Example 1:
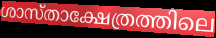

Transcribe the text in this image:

ശാസ്താക്ഷേത്രത്തിലെ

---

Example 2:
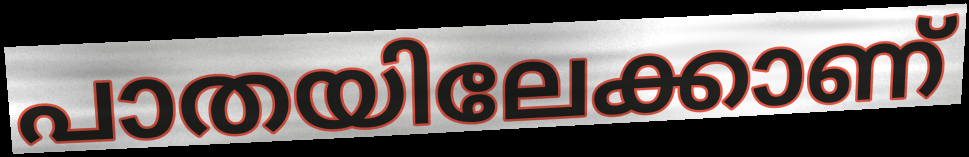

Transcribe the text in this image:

പാതയിലേക്കാണ്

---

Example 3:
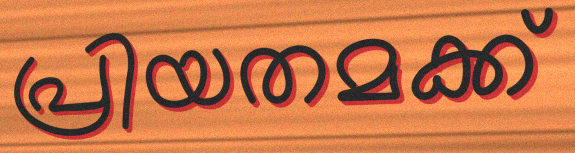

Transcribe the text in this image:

പ്രിയതമക്ക്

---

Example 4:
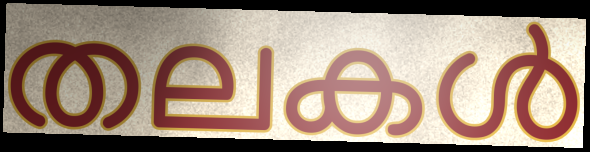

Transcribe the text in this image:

തലകൾ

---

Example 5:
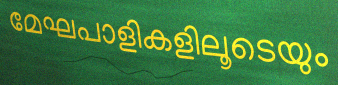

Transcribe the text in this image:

മേഘപാളികളിലൂടെയും